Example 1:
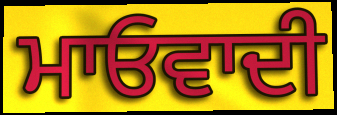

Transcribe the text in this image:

ਮਾਓਵਾਦੀ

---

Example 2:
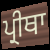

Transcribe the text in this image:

ਪ੍ਰੀਥਾ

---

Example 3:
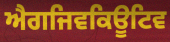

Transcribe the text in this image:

ਐਗਜਿਵਕਿਊਟਿਵ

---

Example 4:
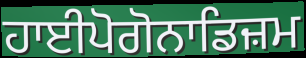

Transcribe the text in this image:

ਹਾਈਪੋਗੋਨਾਡਿਜ਼ਮ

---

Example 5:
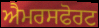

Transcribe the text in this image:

ਐਮਰਸਫੋਰਟ